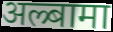
अल्बामा